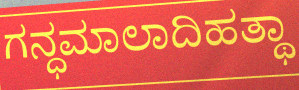
ಗನ್ಧಮಾಲಾದಿಹತ್ಥಾ